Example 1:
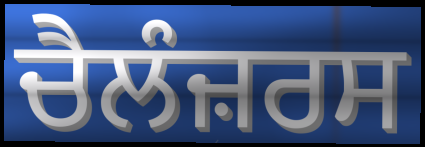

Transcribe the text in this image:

ਚੈਲੰਜ਼ਰਸ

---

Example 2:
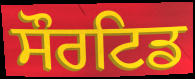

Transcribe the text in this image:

ਸੌਰਟਿਡ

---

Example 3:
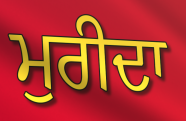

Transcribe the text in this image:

ਮੁਰੀਦਾ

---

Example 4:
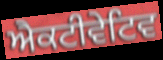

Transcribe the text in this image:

ਐਕਟੀਵੇਟਿਵ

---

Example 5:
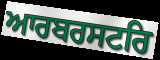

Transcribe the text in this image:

ਆਰਬਰਸਟਰਿ